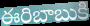
ఈరిబాబుకి